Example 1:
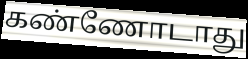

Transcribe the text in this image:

கண்ணோடாது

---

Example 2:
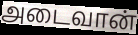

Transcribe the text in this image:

அடைவான்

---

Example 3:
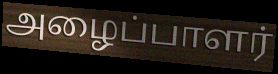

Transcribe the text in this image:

அழைப்பாளர்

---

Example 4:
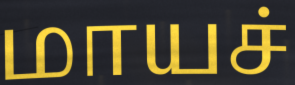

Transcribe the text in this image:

மாயச்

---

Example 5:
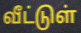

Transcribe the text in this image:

வீட்டுள்